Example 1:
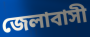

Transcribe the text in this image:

জেলাবাসী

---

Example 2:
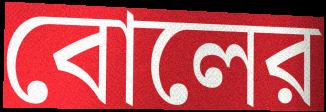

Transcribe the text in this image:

বোলের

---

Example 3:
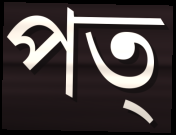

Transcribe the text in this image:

পত্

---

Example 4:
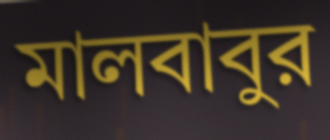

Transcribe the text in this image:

মালবাবুর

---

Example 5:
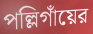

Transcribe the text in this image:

পল্লিগাঁয়ের